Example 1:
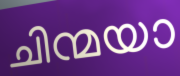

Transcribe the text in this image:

ചിന്മയാ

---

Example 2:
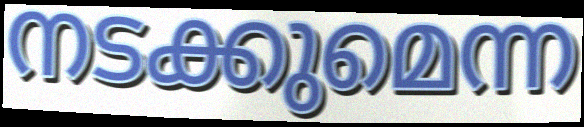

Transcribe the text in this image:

നടക്കുമെന്ന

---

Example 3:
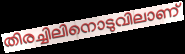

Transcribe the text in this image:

തിരച്ചിലിനൊടുവിലാണ്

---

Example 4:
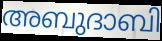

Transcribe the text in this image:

അബുദാബി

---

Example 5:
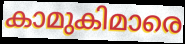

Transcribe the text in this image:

കാമുകിമാരെ